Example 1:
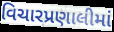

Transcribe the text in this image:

વિચારપ્રણાલીમાં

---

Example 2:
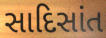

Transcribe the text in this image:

સાદિસાંત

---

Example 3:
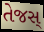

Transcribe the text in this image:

તેજસ્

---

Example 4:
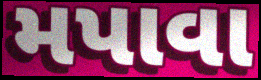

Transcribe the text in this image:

મપાવા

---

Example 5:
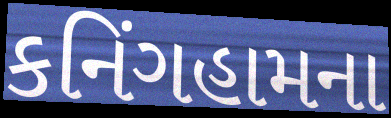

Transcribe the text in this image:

કનિંગહામના